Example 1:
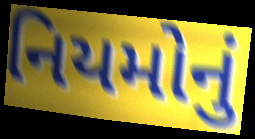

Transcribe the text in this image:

નિયમોનું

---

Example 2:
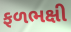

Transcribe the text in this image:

ફળભક્ષી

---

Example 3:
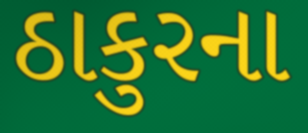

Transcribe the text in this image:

ઠાકુરના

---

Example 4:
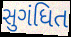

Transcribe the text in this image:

સુગંધિત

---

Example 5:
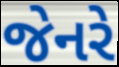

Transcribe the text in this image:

જેનરે